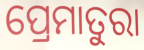
ପ୍ରେମାତୁରା